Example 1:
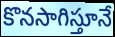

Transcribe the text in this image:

కొనసాగిస్తూనే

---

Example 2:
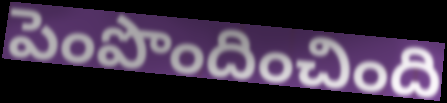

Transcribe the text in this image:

పెంపొందించింది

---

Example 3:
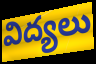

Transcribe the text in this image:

విద్యలు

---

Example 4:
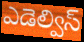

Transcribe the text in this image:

ఎడెల్విస్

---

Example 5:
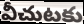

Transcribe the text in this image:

వీచుటకు